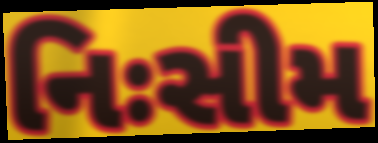
નિઃસીમ